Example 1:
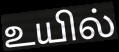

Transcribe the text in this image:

உயில்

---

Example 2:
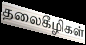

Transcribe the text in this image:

தலைகீழிகள்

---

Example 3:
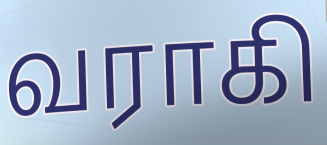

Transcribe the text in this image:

வராகி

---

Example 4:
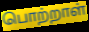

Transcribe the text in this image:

பொற்றாள்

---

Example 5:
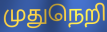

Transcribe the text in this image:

முதுநெறி